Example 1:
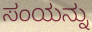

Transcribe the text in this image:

ಸಂಯನ್ನು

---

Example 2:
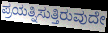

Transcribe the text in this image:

ಪ್ರಯತ್ನಿಸುತ್ತಿರುವುದೇ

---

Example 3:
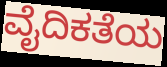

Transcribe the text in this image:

ವೈದಿಕತೆಯ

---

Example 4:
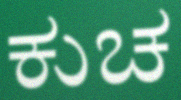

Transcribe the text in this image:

ಕುಚ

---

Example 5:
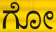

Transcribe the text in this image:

ಗೋ